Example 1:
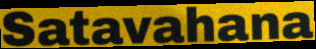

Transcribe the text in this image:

Satavahana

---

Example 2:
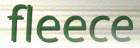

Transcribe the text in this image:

fleece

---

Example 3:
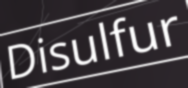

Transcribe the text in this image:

Disulfur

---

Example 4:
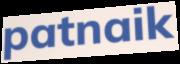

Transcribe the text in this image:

patnaik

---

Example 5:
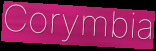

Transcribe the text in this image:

Corymbia